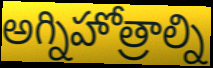
అగ్నిహోత్రాల్ని